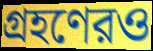
গ্রহণেরও